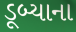
ડૂબ્યાના